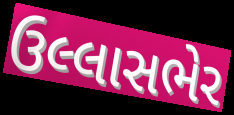
ઉલ્લાસભેર